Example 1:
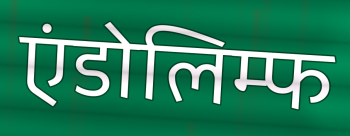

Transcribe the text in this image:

एंडोलिम्फ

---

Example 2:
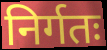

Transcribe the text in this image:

निर्गतः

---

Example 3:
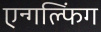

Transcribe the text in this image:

एन्गल्फिंग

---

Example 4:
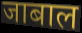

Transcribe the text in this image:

जाबाल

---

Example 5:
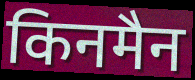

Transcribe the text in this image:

किनमैन